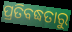
ପ୍ରତିବଦ୍ଧତାରୁ